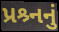
પ્રશ્ર્નનું